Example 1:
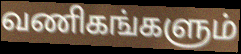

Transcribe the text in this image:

வணிகங்களும்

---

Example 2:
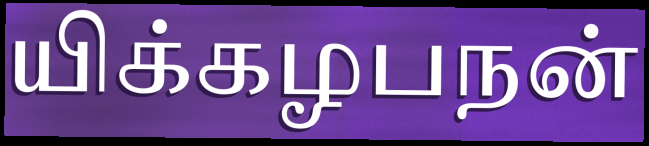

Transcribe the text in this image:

யிக்கழபநன்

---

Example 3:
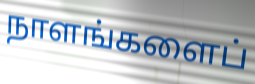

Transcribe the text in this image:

நாளங்களைப்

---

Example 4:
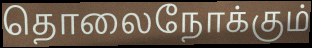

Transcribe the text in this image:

தொலைநோக்கும்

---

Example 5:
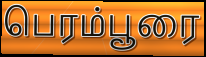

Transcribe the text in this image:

பெரம்பூரை